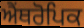
ਐਂਥਰੋਪਿਕ